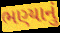
ભણ્યાનું